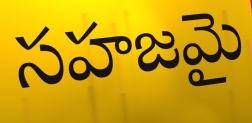
సహజమై